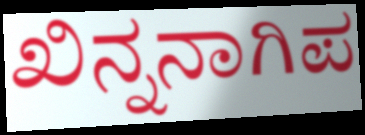
ಖಿನ್ನನಾಗಿಪ